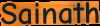
Sainath